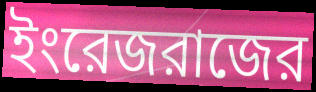
ইংরেজরাজের